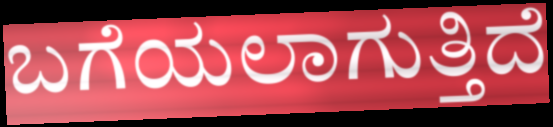
ಬಗೆಯಲಾಗುತ್ತಿದೆ